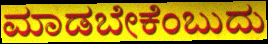
ಮಾಡಬೇಕೆಂಬುದು